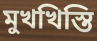
মুখখিস্তি